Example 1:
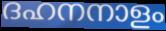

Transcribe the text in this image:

ദഹനനാളം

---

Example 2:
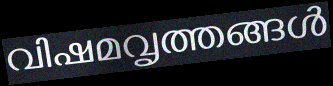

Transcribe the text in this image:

വിഷമവൃത്തങ്ങൾ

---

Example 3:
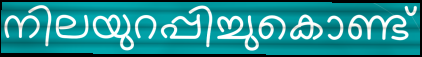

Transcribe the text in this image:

നിലയുറപ്പിച്ചുകൊണ്ട്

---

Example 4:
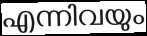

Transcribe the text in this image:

എന്നിവയും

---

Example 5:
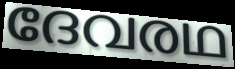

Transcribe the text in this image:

ദേവരഥ